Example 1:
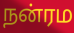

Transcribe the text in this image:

நன்ரம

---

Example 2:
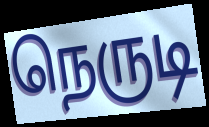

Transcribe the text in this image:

நெருடி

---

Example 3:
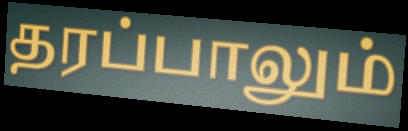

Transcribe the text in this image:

தரப்பாலும்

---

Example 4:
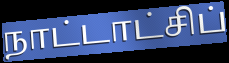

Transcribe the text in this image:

நாட்டாட்சிப்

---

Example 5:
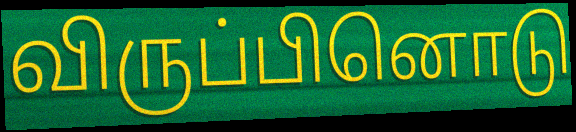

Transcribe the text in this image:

விருப்பினொடு